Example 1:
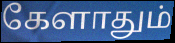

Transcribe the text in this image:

கேளாதும்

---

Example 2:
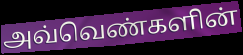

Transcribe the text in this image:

அவ்வெண்களின்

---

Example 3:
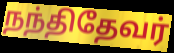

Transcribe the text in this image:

நந்திதேவர்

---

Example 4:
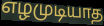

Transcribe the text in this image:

எழமுடியாத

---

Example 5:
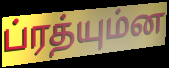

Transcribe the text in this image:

ப்ரத்யும்ன